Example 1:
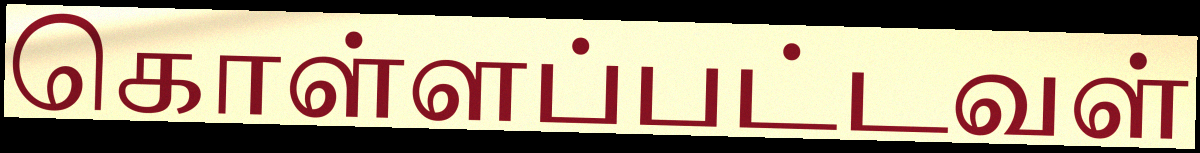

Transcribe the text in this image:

கொள்ளப்பட்டவள்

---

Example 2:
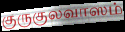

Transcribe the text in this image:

குருகுலவாஸம்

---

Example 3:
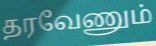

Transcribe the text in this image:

தரவேணும்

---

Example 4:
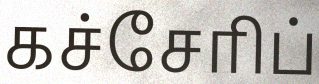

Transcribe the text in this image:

கச்சேரிப்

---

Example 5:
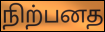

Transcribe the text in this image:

நிற்பனத